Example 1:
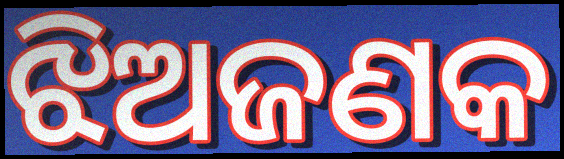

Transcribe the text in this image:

ଝିଅଜଣକ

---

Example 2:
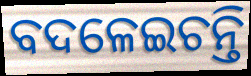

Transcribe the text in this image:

ବଦଳେଇଚନ୍ତି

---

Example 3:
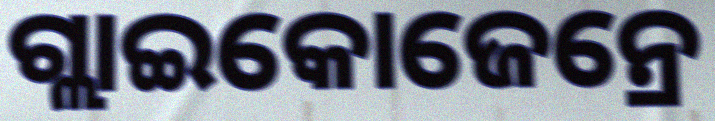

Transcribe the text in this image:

ଗ୍ଲାଇକୋଜେନ୍ରେ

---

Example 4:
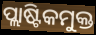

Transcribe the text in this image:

ପ୍ଲାଷ୍ଟିକମୁକ୍ତ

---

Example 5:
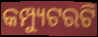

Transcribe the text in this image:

କମ୍ପ୍ୟୁଟରଟି